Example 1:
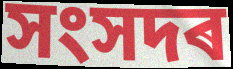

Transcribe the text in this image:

সংসদৰ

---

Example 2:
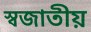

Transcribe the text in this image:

স্বজাতীয়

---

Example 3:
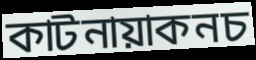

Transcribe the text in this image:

কাটনায়াকনচ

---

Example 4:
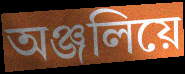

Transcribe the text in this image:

অঞ্জলিয়ে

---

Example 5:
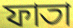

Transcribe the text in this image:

ফাতা